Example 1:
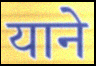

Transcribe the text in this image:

याने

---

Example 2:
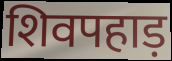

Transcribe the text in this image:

शिवपहाड़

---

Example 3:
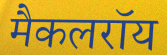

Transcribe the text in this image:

मैकलरॉय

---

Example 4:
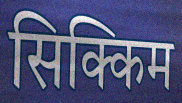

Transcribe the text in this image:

सिक्किम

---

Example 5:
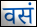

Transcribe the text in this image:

वसं